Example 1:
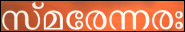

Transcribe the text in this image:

സ്മരേന്നരഃ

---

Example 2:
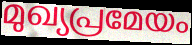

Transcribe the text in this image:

മുഖ്യപ്രമേയം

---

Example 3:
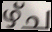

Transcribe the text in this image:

ഴ്ച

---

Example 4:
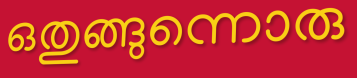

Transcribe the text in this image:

ഒതുങ്ങുന്നൊരു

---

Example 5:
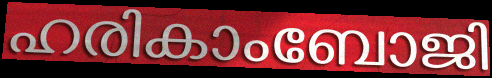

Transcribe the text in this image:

ഹരികാംബോജി